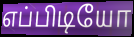
எப்பிடியோ